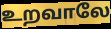
உறவாலே